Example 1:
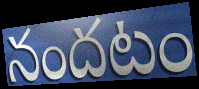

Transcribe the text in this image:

నందటం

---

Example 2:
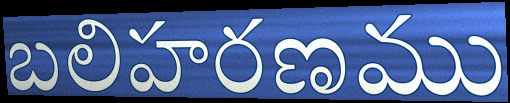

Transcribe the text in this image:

బలిహరణము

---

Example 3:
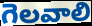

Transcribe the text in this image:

గెలవాలి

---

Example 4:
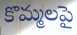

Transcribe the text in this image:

కొమ్మలపై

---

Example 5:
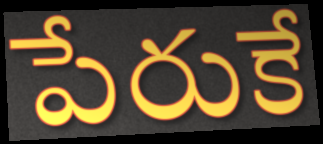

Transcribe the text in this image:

పేరుకే